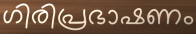
ഗിരിപ്രഭാഷണം